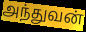
அந்துவன்